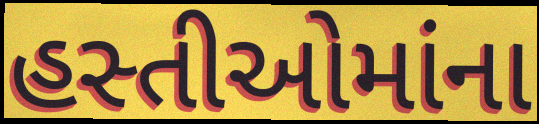
હસ્તીઓમાંના